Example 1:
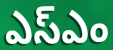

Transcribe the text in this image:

ఎస్ఎం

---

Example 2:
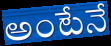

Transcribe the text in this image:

అంటేనే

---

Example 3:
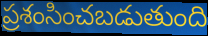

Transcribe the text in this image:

ప్రశంసించబడుతుంది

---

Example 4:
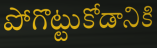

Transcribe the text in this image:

పోగొట్టుకోడానికి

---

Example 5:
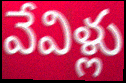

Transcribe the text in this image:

వేవిళ్లు